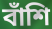
বাঁশি